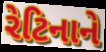
રેટિનાને